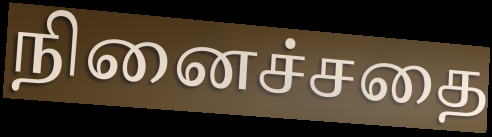
நினைச்சதை